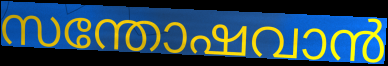
സന്തോഷവാൻ